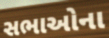
સભાઓના